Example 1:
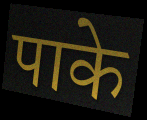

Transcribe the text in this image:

पाके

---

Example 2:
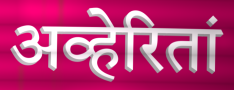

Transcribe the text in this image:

अव्हेरितां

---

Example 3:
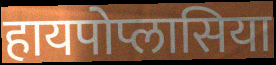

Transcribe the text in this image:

हायपोप्लासिया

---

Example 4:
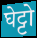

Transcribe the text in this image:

घेट्टो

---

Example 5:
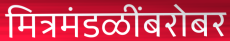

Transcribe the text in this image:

मित्रमंडळींबरोबर